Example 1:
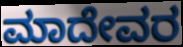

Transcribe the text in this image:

ಮಾದೇವರ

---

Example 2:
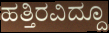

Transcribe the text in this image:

ಹತ್ತಿರವಿದ್ದೂ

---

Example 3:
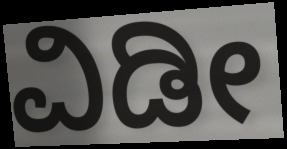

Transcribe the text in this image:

ವಿಡೀ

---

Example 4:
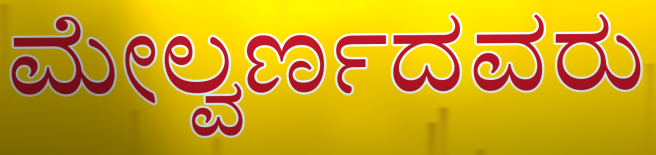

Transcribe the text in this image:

ಮೇಲ್ವರ್ಣದವರು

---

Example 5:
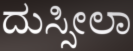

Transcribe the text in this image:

ದುಸ್ಸೀಲಾ